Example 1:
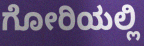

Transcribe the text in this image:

ಗೋರಿಯಲ್ಲಿ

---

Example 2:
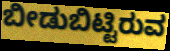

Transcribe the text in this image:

ಬೀಡುಬಿಟ್ಟಿರುವ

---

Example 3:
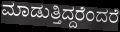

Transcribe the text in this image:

ಮಾಡುತ್ತಿದ್ದರೆಂದರೆ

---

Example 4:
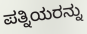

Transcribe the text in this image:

ಪತ್ನಿಯರನ್ನು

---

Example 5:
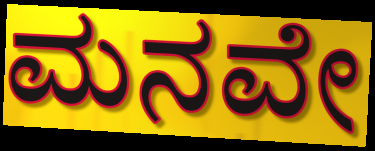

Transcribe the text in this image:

ಮನವೇ